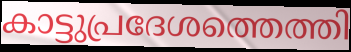
കാട്ടുപ്രദേശത്തെത്തി